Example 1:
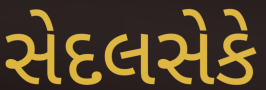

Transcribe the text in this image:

સેદલસેકે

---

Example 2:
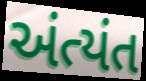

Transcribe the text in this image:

અંત્યંત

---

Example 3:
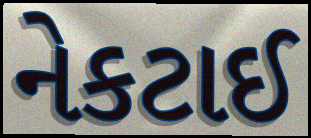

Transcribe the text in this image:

નેકટાઈ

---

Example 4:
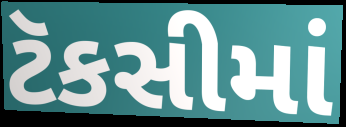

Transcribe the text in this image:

ટૅકસીમાં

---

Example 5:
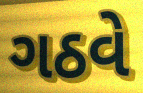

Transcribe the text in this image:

ગઠવે